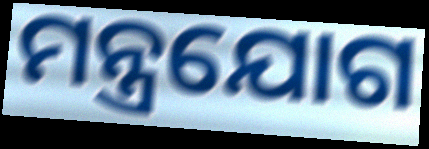
ମନ୍ତ୍ରଯୋଗ